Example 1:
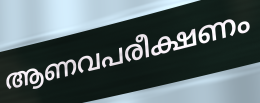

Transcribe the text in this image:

ആണവപരീക്ഷണം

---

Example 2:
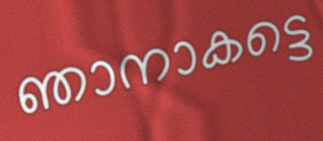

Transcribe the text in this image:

ഞാനാകട്ടെ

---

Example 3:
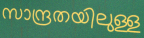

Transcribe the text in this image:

സാന്ദ്രതയിലുള്ള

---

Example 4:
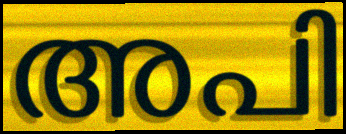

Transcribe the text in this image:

അപി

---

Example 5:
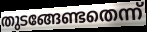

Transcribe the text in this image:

തുടങ്ങേണ്ടതെന്ന്